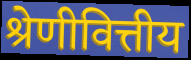
श्रेणीवित्तीय